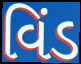
વિંડ